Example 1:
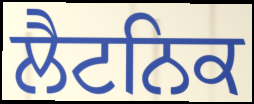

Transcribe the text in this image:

ਲੈਟਨਿਕ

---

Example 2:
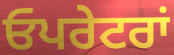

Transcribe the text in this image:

ਓਪਰੇਟਰਾਂ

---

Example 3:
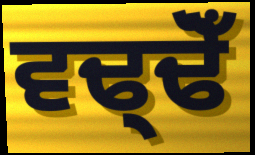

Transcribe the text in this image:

ਵਢ੍ਢੋਁ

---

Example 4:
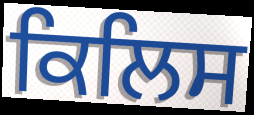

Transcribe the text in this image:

ਕਿਲਿਸ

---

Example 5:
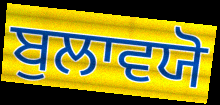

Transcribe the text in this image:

ਬੁਲਾਵਯੋ